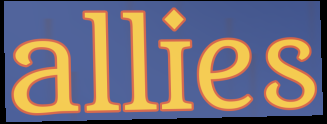
allies